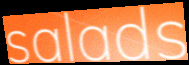
salads